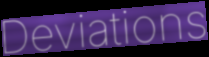
Deviations